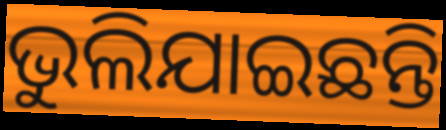
ଭୁଲିଯାଇଛନ୍ତି